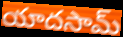
యాదసామ్